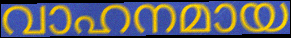
വാഹനമായ